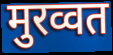
मुरव्वत